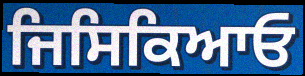
ਜਿਸਿਕਿਆਓ